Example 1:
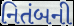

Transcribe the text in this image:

નિતંબની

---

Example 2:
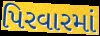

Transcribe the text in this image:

પિરવારમાં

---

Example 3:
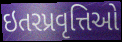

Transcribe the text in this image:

ઇતરપ્રવૃત્તિઓ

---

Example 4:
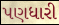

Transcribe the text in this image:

પણધારી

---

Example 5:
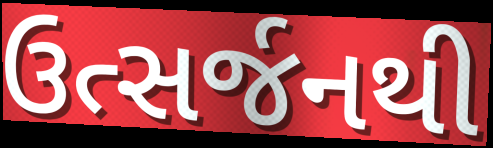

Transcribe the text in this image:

ઉત્સર્જનથી